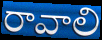
రావాలి